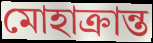
মোহাক্রান্ত